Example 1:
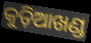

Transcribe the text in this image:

କୁଡ଼ିଆଖଣ୍ଡ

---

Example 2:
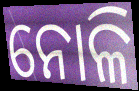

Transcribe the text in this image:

ନୋଳି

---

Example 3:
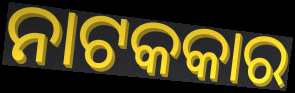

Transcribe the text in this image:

ନାଟକକାର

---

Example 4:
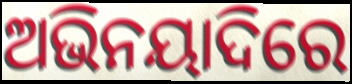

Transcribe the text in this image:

ଅଭିନୟାଦିରେ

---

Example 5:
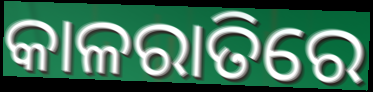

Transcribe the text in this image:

କାଳରାତିରେ